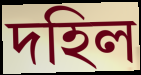
দহিল